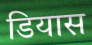
डियास